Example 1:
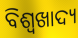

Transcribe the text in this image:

ବିଶ୍ୱଖାଦ୍ୟ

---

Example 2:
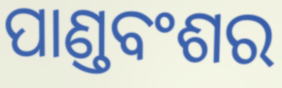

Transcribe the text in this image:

ପାଣ୍ଡବଂଶର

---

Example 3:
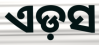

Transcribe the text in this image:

ଏଡ଼ସ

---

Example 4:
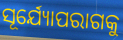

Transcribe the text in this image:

ସୂର୍ଯ୍ୟୋପରାଗକୁ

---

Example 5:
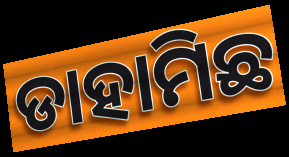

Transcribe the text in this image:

ଡାହାମିଛ